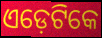
ଏଡ଼େଟିକେ